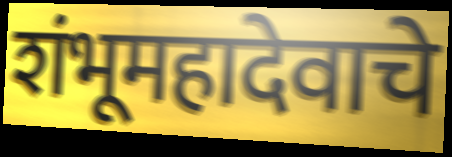
शंभूमहादेवाचे